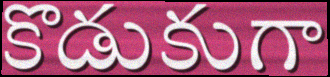
కొడుకుగా